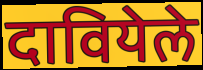
दावियेले